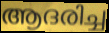
ആദരിച്ച